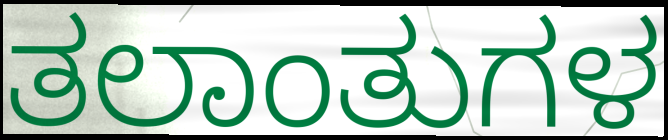
ತಲಾಂತುಗಳ